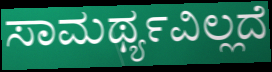
ಸಾಮರ್ಥ್ಯವಿಲ್ಲದೆ